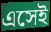
এসেই